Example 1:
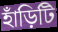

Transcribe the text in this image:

হাঁড়িটি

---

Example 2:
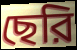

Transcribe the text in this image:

ছেরি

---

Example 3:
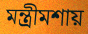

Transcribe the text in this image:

মন্ত্রীমশায়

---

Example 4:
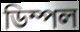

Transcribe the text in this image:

ডিম্পল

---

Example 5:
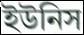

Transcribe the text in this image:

ইউনিস